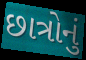
છાત્રોનું